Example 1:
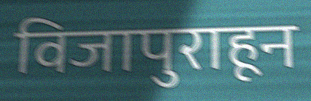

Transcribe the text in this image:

विजापुराहून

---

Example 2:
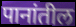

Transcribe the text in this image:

पानांतील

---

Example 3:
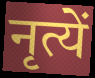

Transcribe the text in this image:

नृत्यें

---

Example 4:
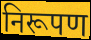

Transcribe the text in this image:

निरूपण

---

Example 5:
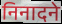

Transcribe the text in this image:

निनादने